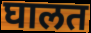
घालत